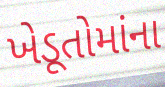
ખેડૂતોમાંના